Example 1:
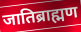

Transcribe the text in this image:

जातिब्राह्मण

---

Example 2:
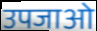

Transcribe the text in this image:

उपजाओ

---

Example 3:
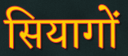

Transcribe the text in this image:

सियागों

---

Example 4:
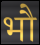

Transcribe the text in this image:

भौ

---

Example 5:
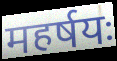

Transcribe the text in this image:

महर्षयः